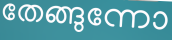
തേങ്ങുന്നോ